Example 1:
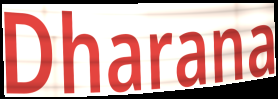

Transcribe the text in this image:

Dharana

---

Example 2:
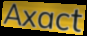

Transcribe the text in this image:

Axact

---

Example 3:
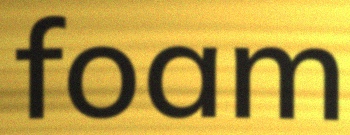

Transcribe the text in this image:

foam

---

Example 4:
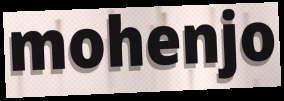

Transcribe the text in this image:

mohenjo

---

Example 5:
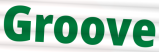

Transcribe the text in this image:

Groove